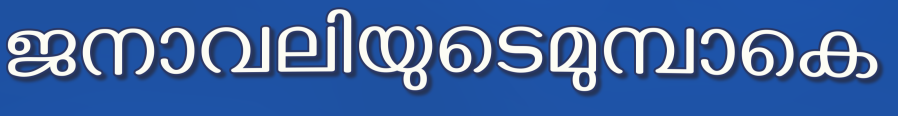
ജനാവലിയുടെമുമ്പാകെ